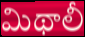
మిథాలీ